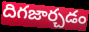
దిగజార్చడం